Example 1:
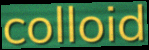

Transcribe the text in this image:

colloid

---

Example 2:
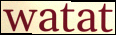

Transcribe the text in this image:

watat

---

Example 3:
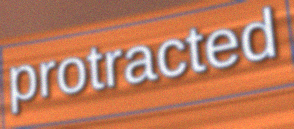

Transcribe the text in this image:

protracted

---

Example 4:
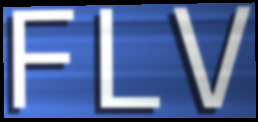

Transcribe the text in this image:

FLV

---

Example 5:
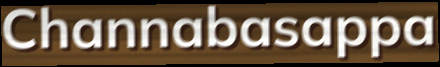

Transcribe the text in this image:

Channabasappa